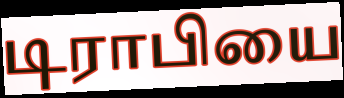
டிராபியை